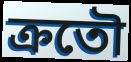
ক্রতৌ